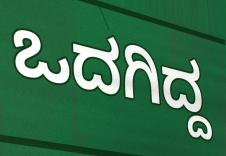
ಒದಗಿದ್ದ